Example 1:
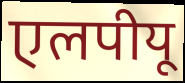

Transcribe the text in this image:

एलपीयू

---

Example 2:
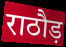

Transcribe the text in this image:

राठौड़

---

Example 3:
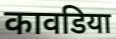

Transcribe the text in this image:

कावडिया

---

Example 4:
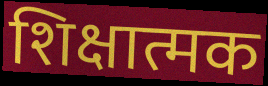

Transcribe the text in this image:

शिक्षात्मक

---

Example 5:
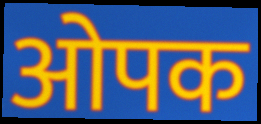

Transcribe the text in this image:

ओपक